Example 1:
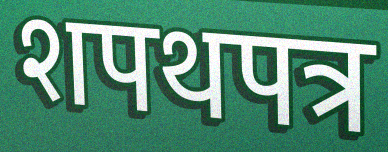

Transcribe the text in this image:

शपथपत्र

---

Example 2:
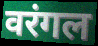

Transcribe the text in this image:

वरंगल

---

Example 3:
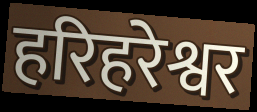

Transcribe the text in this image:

हरिहरेश्वर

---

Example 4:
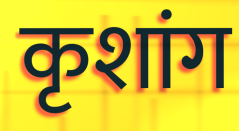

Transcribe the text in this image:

कृशांग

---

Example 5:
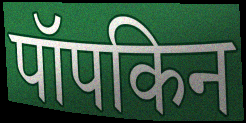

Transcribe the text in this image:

पॉपकिन